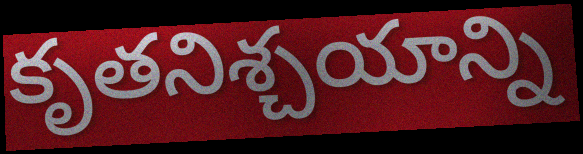
కృతనిశ్చయాన్ని